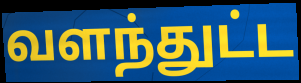
வளந்துட்ட